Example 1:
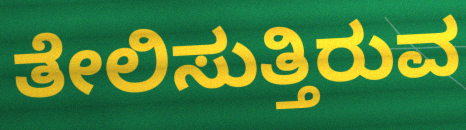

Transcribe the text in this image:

ತೇಲಿಸುತ್ತಿರುವ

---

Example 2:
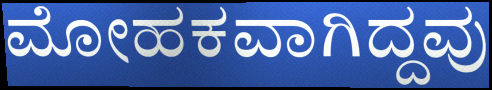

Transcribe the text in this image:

ಮೋಹಕವಾಗಿದ್ದವು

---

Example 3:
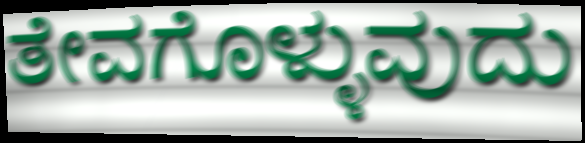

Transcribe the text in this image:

ತೇವಗೊಳ್ಳುವುದು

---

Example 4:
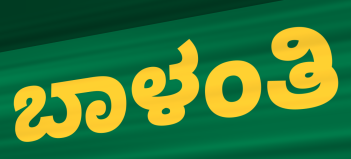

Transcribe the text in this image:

ಬಾಳಂತಿ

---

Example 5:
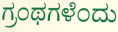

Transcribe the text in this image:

ಗ್ರಂಥಗಳೆಂದು